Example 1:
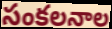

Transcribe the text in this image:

సంకలనాల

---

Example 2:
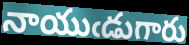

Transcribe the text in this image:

నాయుఁడుగారు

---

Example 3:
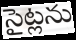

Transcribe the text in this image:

సైట్లను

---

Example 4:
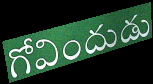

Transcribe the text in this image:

గోవిందుడు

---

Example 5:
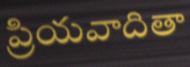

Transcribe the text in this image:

ప్రియవాదితా